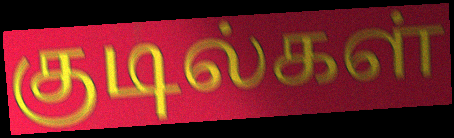
குடில்கள்